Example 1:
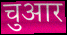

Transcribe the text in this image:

चुआर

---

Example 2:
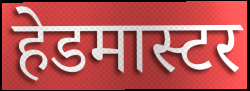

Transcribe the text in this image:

हेडमास्टर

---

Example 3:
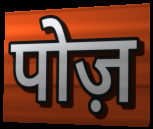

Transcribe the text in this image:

पोज़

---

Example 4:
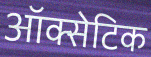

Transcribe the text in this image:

ऑक्सेटिक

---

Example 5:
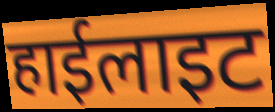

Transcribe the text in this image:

हाईलाइट